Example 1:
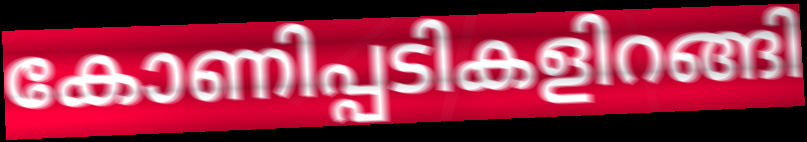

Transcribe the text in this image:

കോണിപ്പടികളിറങ്ങി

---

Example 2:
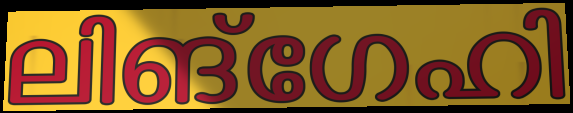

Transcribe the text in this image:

ലിങ്ഗേഹി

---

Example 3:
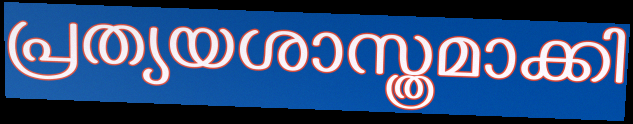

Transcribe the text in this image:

പ്രത്യയശാസ്ത്രമാക്കി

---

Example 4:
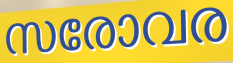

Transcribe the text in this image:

സരോവര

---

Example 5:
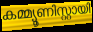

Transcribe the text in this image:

കമ്മ്യൂണിസ്റ്റായി